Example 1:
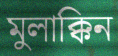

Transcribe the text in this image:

মুলাক্কিন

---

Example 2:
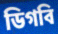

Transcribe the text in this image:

ডিগবি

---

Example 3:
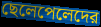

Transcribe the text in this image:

ছেলেপেলেদের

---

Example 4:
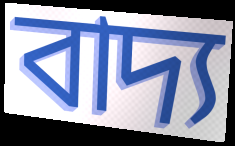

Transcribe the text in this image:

বাদ্য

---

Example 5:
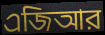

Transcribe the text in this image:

এজিআর